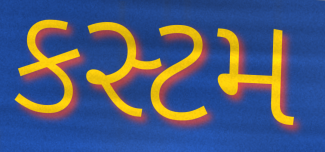
કસ્ટમ